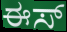
ಈಸ್